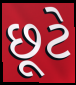
છૂટે